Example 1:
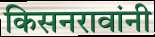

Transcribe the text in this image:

किसनरावांनी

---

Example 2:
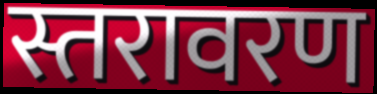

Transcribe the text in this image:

स्तरावरण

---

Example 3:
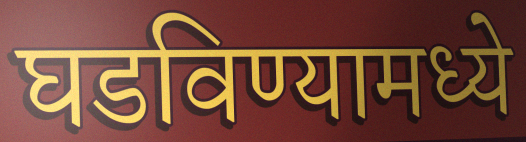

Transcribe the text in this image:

घडविण्यामध्ये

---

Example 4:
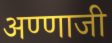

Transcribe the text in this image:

अण्णाजी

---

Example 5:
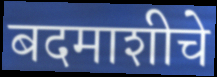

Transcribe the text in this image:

बदमाशीचे